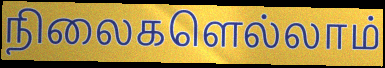
நிலைகளெல்லாம்